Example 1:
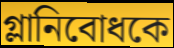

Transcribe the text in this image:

গ্লানিবোধকে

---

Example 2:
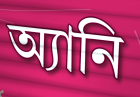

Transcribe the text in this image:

অ্যানি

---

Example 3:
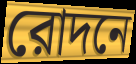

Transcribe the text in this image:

রোদনে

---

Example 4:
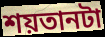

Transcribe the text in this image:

শয়তানটা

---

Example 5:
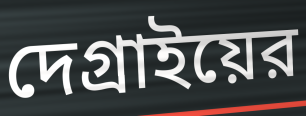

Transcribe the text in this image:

দেগ্রাইয়ের